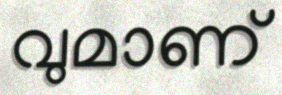
വുമാണ്